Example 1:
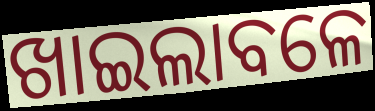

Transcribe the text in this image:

ଖାଇଲାବଳେ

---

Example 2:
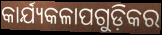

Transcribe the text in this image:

କାର୍ଯ୍ୟକଳାପଗୁଡ଼ିକର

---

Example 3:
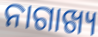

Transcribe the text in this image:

ନାଗାଖ୍ୟ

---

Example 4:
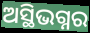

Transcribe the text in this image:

ଅସ୍ଥିଭଗ୍ନର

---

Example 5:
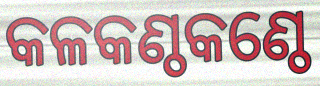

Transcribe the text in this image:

କଳକଣ୍ଠକଣ୍ଠେ